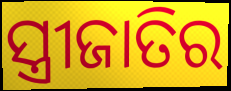
ସ୍ତ୍ରୀଜାତିର